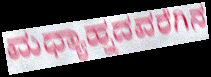
ಮಧ್ಯಾಹ್ನದವರೆಗಿನ